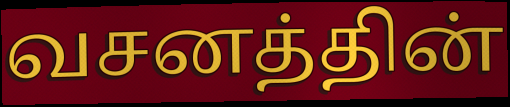
வசனத்தின்